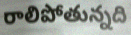
రాలిపోతున్నది